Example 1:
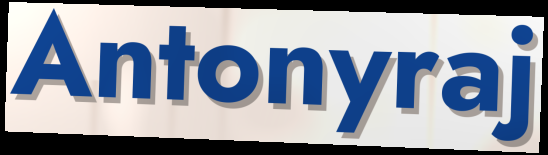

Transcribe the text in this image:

Antonyraj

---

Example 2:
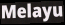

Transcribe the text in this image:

Melayu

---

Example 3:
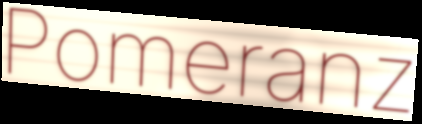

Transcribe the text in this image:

Pomeranz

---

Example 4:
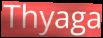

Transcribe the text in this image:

Thyaga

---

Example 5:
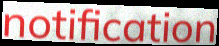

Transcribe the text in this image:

notification